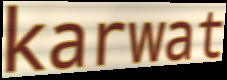
karwat